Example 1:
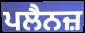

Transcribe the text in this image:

ਪਲੈਨਜ਼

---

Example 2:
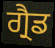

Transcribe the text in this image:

ਗ੍ਰੈਡ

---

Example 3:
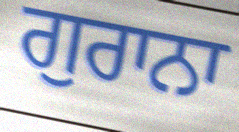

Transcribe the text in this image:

ਗੁਰਾਨਾ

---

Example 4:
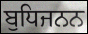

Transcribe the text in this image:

ਬੁਧਿਜਨਨ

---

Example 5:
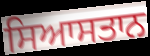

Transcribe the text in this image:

ਸਿਆਸਤਾਨ